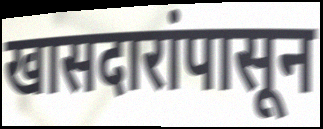
खासदारांपासून